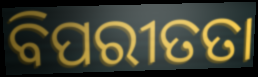
ବିପରୀତତା